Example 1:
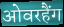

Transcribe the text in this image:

ओवरहैंग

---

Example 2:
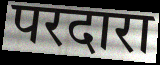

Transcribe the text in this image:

परदारा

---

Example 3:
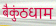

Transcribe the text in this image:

बैकुंठधाम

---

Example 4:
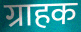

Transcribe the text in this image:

ग्राहक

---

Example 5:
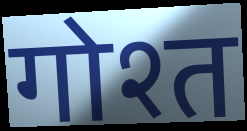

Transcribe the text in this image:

गोश्त